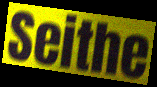
Seithe